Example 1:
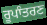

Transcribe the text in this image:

ਰੂਪਾੰਤਰਣ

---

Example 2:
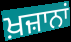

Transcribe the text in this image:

ਖ਼ਜ਼ਾਨਾਂ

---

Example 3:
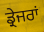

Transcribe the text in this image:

ਡ੍ਰੇਜਰਾਂ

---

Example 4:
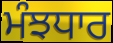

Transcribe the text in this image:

ਮੰਝਧਾਰ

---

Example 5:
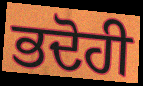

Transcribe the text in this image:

ਭਦੋਹੀ